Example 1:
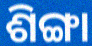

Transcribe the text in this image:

ଶିଙ୍ଗା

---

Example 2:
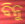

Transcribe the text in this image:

ବିନୁ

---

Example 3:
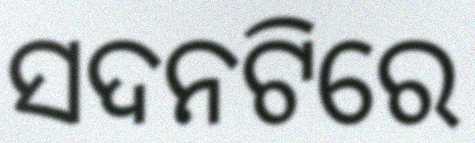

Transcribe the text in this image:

ସଦନଟିରେ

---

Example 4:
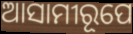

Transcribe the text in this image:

ଆସାମୀରୂପେ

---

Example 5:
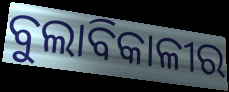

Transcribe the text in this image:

ବୁଲାବିକାଳୀର